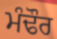
ਮੰਢੌਰ